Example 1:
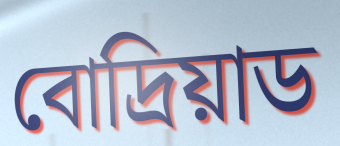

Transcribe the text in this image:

বোদ্রিয়াড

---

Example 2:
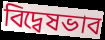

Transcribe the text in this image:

বিদ্বেষভাব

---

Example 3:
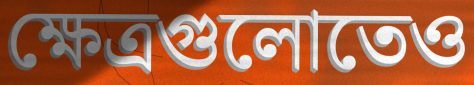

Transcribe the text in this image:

ক্ষেত্রগুলোতেও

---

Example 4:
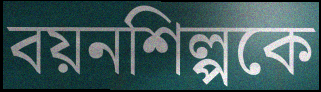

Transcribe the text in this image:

বয়নশিল্পকে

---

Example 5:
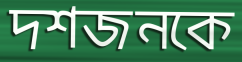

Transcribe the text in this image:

দশজনকে